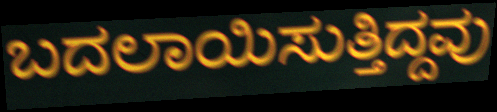
ಬದಲಾಯಿಸುತ್ತಿದ್ದವು